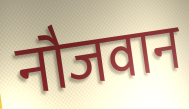
नौजवान